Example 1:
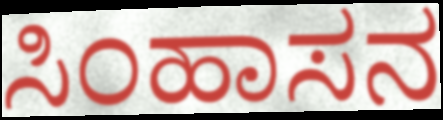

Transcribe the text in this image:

ಸಿಂಹಾಸನ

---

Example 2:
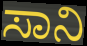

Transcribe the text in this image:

ಸಾನಿ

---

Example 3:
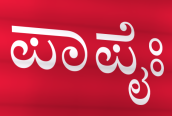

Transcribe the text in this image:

ಪಾಪೈಃ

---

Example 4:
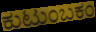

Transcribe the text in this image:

ಕುಟುಂಬಕಂ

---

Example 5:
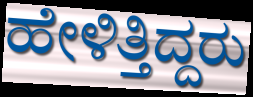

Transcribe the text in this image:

ಹೇಳಿತ್ತಿದ್ದರು